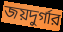
জয়দুর্গার